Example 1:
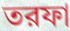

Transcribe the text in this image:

তরফা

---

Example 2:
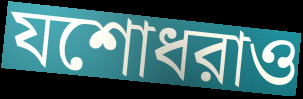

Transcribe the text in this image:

যশোধরাও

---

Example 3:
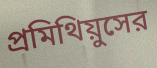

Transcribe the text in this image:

প্রমিথিয়ুসের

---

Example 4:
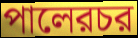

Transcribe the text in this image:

পালেরচর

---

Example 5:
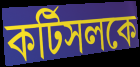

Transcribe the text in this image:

কর্টিসলকে